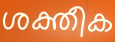
ശക്തീക